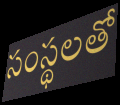
సంస్థలతో